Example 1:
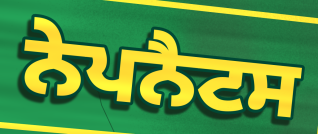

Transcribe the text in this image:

ਨੇਪਨੈਟਸ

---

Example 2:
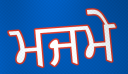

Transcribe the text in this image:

ਮਜਮੇ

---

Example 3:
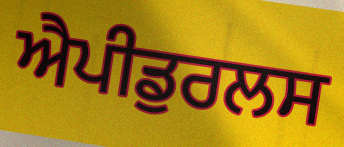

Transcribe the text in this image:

ਐਪੀਡੁਰਲਸ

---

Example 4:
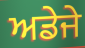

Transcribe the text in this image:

ਅਡੇਜੇ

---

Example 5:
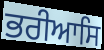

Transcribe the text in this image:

ਭਰੀਆਸਿ